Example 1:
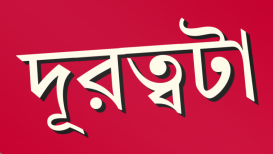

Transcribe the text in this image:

দূরত্বটা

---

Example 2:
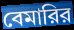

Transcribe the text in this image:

বেমারির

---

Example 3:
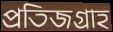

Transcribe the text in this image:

প্রতিজগ্রাহ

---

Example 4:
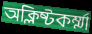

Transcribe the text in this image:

অক্লিষ্টকর্ম্মা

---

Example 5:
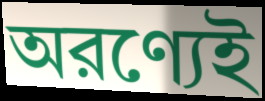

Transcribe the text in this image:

অরণ্যেই